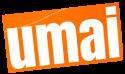
umai